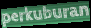
perkuburan